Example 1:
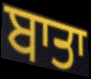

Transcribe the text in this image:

ਬਾਤਾ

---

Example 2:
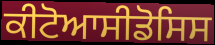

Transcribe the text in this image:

ਕੀਟੋਆਸੀਡੋਸਿਸ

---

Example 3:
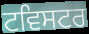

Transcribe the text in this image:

ਟਵਿਸਟਰ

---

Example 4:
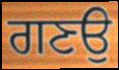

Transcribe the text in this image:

ਗਣਉ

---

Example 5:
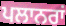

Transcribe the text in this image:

ਪਲਾਨਰਾਂ